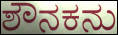
ಶೌನಕನು